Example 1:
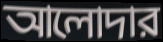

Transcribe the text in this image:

আলোদার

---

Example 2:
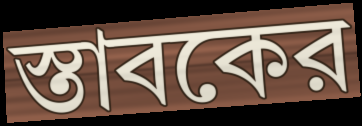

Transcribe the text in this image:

স্তাবকের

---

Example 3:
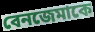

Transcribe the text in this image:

বেনজেমাকে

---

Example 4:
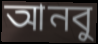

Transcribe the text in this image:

আনবু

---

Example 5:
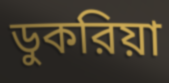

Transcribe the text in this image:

ডুকরিয়া